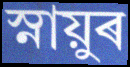
স্নায়ুৰ